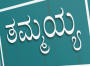
ತಮ್ಮಯ್ಯ